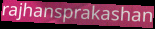
rajhansprakashan